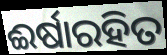
ଈର୍ଷାରହିତ